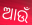
ଆଉଁ